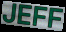
JEFF